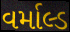
વર્માલ્ડ